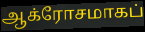
ஆக்ரோசமாகப்